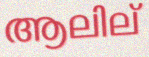
ആലില്